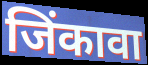
जिंकावा